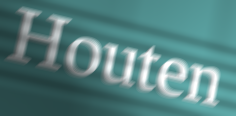
Houten